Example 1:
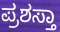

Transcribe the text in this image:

ಪ್ರಶಸ್ತಾ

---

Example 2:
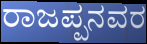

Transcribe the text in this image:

ರಾಜಪ್ಪನವರ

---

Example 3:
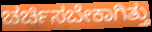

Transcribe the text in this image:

ಚರ್ಚಿಸಬೇಕಾಗಿತ್ತು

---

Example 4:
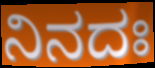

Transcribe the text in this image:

ನಿನದಃ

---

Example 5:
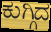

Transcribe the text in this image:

ಕುಗ್ಗಿದ